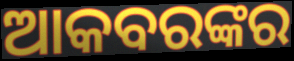
ଆକବରଙ୍କର